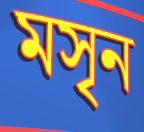
মসৃন